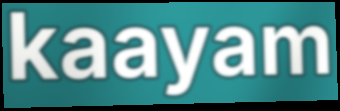
kaayam